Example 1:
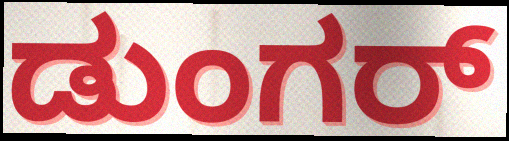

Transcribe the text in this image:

ಡುಂಗರ್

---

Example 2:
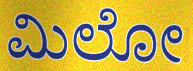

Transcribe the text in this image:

ಮಿಲೋ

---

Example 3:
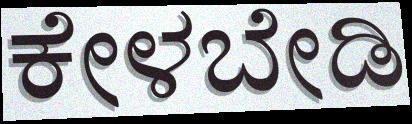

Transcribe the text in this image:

ಕೇಳಬೇಡಿ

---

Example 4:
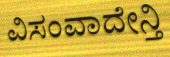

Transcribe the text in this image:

ವಿಸಂವಾದೇನ್ತಿ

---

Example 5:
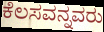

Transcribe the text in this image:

ಕೆಲಸವನ್ನವರು